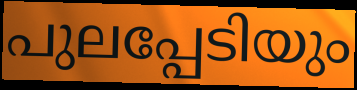
പുലപ്പേടിയും